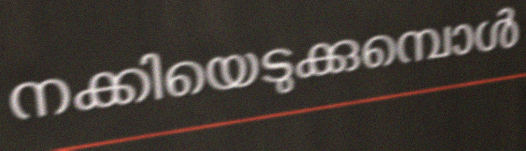
നക്കിയെടുക്കുമ്പൊൾ